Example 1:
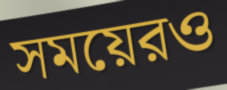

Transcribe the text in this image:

সময়েরও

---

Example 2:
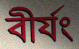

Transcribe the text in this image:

বীর্যং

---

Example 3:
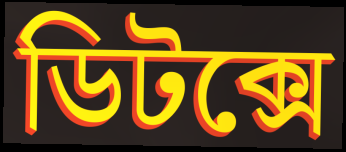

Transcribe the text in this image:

ডিটক্সে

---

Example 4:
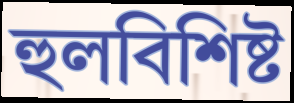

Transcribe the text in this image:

হুলবিশিষ্ট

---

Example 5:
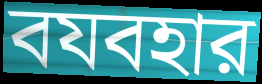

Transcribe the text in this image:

বযবহার